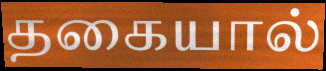
தகையால்